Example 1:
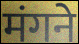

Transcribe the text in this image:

मंगने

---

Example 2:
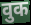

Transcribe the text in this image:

वुक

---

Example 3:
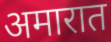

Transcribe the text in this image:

अमारात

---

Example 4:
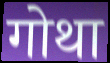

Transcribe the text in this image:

गोथा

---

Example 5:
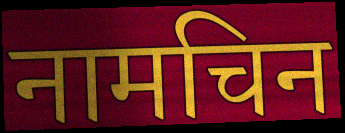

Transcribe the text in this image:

नामचिन